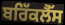
ਬਰਿੱਕਲੈੱਸ